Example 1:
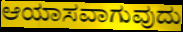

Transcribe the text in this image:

ಆಯಾಸವಾಗುವುದು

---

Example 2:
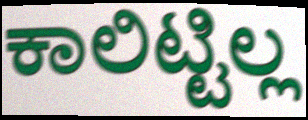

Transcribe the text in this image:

ಕಾಲಿಟ್ಟಿಲ್ಲ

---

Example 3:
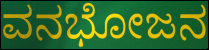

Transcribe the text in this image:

ವನಭೋಜನ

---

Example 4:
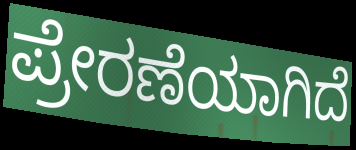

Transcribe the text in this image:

ಪ್ರೇರಣೆಯಾಗಿದೆ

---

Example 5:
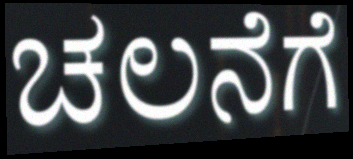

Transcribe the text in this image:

ಚಲನೆಗೆ